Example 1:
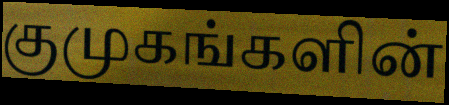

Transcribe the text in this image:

குமுகங்களின்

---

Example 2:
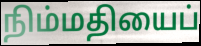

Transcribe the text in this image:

நிம்மதியைப்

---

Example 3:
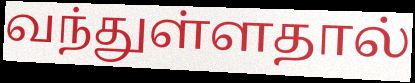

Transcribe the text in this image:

வந்துள்ளதால்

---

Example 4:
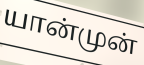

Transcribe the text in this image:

யான்முன்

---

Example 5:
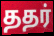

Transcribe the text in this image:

ததர்